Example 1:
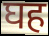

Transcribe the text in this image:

घह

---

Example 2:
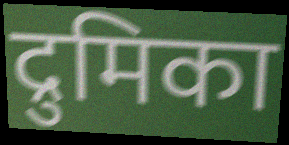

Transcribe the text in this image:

द्रुमिका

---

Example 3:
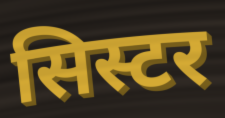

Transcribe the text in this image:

सिस्टर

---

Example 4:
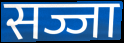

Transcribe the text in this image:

सज्जा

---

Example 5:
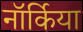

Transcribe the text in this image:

नॉर्किया